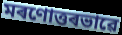
মৰণোত্তৰভাৱে